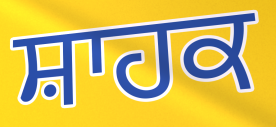
ਸ਼ਾਹਕ